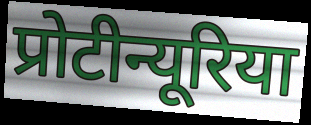
प्रोटीन्यूरिया